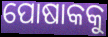
ପୋଷାକକୁ